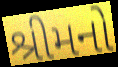
શ્રીમનો